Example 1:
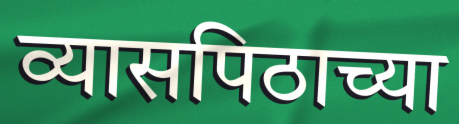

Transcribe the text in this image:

व्यासपिठाच्या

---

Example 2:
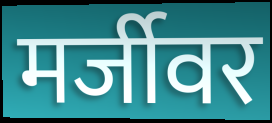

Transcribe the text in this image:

मर्जीवर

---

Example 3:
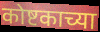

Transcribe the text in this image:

कोष्टकाच्या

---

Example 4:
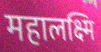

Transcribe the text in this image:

महालक्ष्मि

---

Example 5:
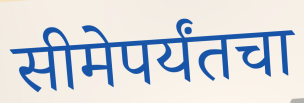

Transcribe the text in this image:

सीमेपर्यंतचा